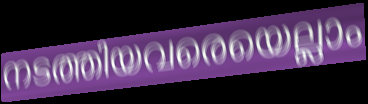
നടത്തിയവരെയെല്ലാം